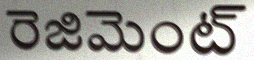
రెజిమెంట్